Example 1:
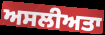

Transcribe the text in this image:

ਅਸਲੀਅਤਾ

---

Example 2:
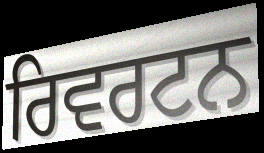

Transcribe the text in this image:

ਰਿਵਰਟਨ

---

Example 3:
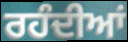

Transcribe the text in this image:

ਰਹੰਦੀਆਂ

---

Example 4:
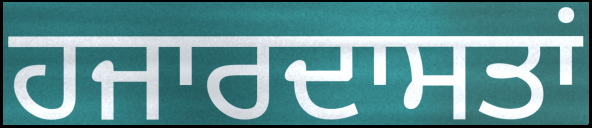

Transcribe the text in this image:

ਹਜਾਰਦਾਸਤਾਂ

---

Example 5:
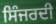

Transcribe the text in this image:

ਸਿੰਜਰਦੀ